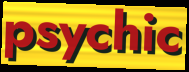
psychic